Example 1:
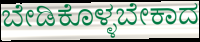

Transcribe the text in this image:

ಬೇಡಿಕೊಳ್ಳಬೇಕಾದ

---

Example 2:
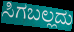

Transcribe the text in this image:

ಸಿಗಬಲ್ಲದು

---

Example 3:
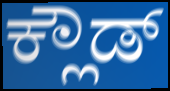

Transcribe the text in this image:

ಕ್ಲೌಡ್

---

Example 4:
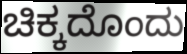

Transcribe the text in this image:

ಚಿಕ್ಕದೊಂದು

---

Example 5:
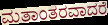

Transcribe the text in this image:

ಮತಾಂತರವಾದರೆ